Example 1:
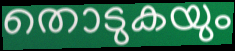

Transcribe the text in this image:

തൊടുകയും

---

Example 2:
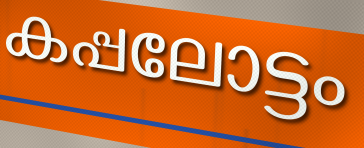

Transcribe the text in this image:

കപ്പലോട്ടം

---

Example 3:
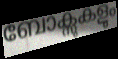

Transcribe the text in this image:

ബോക്സുകളും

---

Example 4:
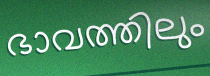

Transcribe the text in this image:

ഭാവത്തിലും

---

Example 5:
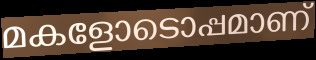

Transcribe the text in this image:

മകളോടൊപ്പമാണ്